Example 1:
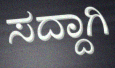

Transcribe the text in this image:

ಸದ್ದಾಗಿ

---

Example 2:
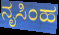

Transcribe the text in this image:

ನೃಸಿಂಹ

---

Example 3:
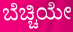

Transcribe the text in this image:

ಬೆಚ್ಚಿಯೇ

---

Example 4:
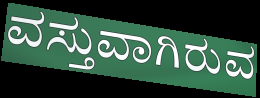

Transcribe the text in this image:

ವಸ್ತುವಾಗಿರುವ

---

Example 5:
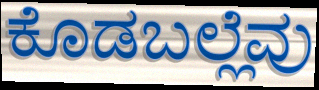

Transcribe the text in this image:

ಕೊಡಬಲ್ಲೆವು